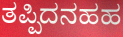
ತಪ್ಪಿದನಹಹ